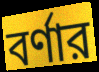
বর্ণার